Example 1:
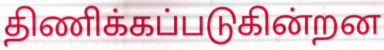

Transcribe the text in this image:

திணிக்கப்படுகின்றன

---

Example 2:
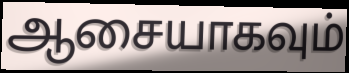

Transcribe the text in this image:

ஆசையாகவும்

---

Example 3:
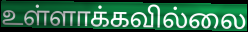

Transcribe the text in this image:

உள்ளாக்கவில்லை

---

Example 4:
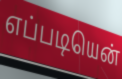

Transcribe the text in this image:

எப்படியென்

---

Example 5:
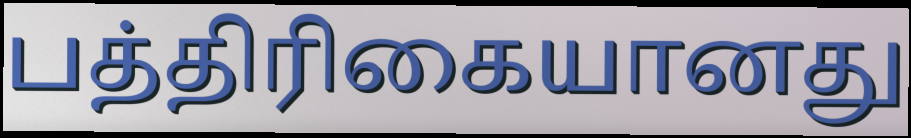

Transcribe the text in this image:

பத்திரிகையானது